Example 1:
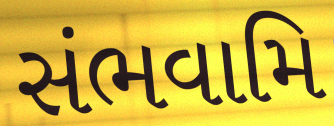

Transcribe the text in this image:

સંભવામિ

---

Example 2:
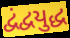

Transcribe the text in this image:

દ્વંદ્વયુદ્ધ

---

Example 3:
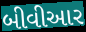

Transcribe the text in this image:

બીવીઆર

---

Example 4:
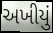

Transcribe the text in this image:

અખીયું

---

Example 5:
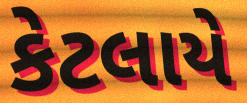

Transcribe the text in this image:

કેટલાયે